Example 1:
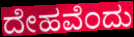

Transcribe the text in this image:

ದೇಹವೆಂದು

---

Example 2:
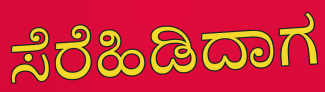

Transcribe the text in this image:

ಸೆರೆಹಿಡಿದಾಗ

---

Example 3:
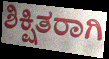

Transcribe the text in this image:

ಶಿಕ್ಷಿತರಾಗಿ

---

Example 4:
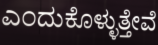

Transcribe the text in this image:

ಎಂದುಕೊಳ್ಳುತ್ತೇವೆ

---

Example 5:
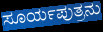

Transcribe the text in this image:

ಸೂರ್ಯಪುತ್ರನು